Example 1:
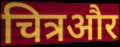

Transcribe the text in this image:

चित्रऔर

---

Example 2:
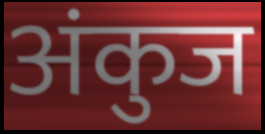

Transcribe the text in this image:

अंकुज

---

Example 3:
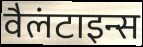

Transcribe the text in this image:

वैलंटाइन्स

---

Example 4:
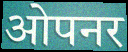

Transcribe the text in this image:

ओपनर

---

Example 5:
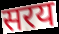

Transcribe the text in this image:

सरय